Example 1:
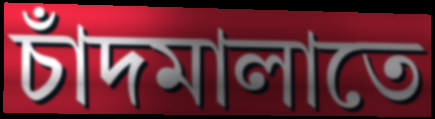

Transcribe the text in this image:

চাঁদমালাতে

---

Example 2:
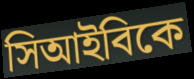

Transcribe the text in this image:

সিআইবিকে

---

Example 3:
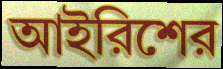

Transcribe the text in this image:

আইরিশের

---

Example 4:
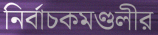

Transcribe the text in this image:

নির্বাচকমণ্ডলীর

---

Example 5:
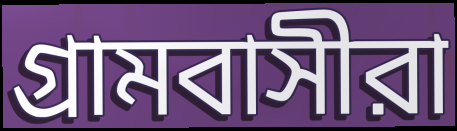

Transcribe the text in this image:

গ্রামবাসীরা